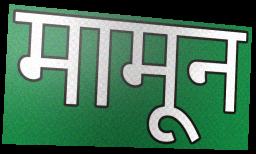
मामून